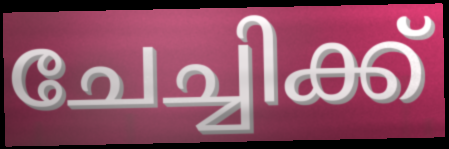
ചേച്ചിക്ക്